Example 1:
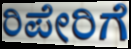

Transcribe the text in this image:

ರಿಪೇರಿಗೆ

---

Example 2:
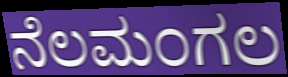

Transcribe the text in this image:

ನೆಲಮಂಗಲ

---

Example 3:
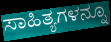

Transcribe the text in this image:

ಸಾಹಿತ್ಯಗಳನ್ನೂ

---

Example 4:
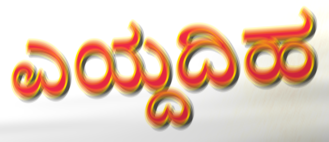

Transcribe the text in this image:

ಎಯ್ದದಿಹ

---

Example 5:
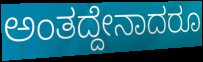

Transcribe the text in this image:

ಅಂತದ್ದೇನಾದರೂ